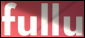
fullu